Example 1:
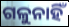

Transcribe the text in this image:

ଗଳୁନାହିଁ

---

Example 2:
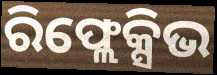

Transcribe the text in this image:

ରିଫ୍ଲେକ୍ସିଭ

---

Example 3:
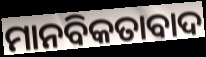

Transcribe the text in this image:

ମାନବିକତାବାଦ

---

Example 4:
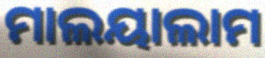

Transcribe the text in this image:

ମାଲୟାଲାମ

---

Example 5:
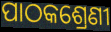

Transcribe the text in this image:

ପାଠକଶ୍ରେଣୀ